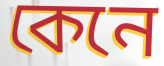
কেনে